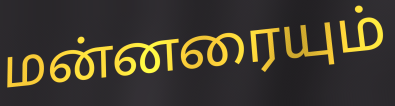
மன்னரையும்